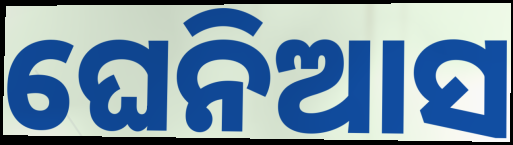
ଘେନିଆସ